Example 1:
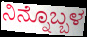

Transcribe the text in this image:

ನಿನ್ನೊಬ್ಬಳ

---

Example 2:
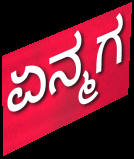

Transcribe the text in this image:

ಏನ್ಮಗ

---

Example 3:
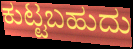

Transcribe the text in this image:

ಕುಟ್ಟಬಹುದು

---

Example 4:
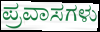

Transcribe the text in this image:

ಪ್ರವಾಸಗಳು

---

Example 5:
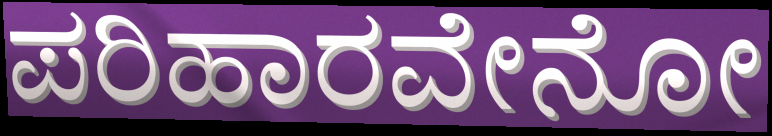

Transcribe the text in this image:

ಪರಿಹಾರವೇನೋ